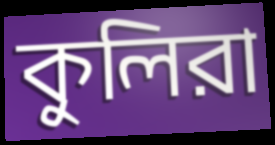
কুলিরা